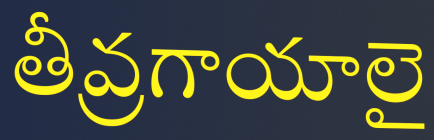
తీవ్రగాయాలై